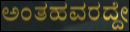
ಅಂತಹವರದ್ದೇ